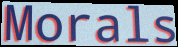
Morals